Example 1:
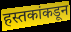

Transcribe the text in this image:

हस्तकांकडून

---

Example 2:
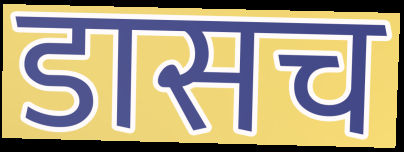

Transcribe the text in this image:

डासच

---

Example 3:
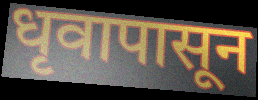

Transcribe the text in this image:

धृवापासून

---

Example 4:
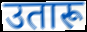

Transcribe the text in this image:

उतारू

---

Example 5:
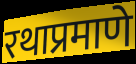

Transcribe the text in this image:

रथाप्रमाणे